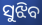
ସୁଝିବ